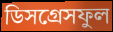
ডিসগ্রেসফুল